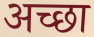
अच्‍छा